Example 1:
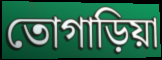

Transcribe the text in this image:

তোগাড়িয়া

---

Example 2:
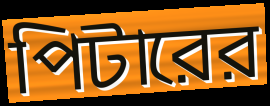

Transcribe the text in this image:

পিটারের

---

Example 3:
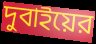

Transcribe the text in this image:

দুবাইয়ের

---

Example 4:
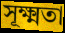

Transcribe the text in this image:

সূক্ষ্মতা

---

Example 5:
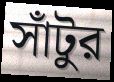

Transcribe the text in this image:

সাঁটুর